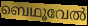
ബെഥൂവേൽ